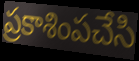
ప్రకాశింపచేసి